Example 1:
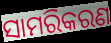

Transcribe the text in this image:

ସାମରିକରଣ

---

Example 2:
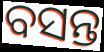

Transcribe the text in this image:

ବସନ୍ତ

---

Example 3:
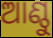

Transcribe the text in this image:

ଆଣ୍ଠୁ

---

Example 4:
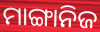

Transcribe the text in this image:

ମାଙ୍ଗାନିଜ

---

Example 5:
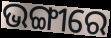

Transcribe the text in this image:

ଭଙ୍ଗୀରେ